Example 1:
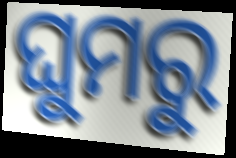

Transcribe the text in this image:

ଘୁମରୁ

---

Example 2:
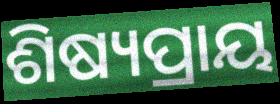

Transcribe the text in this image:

ଶିଷ୍ୟପ୍ରାୟ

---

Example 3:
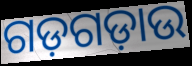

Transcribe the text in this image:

ଗଡ଼ଗଡ଼ାଉ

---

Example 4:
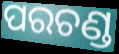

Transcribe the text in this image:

ପରଚଣ୍ଡ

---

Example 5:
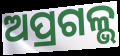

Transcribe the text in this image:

ଅପ୍ରଗଳ୍ଭ